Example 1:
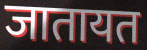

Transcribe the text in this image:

जातायत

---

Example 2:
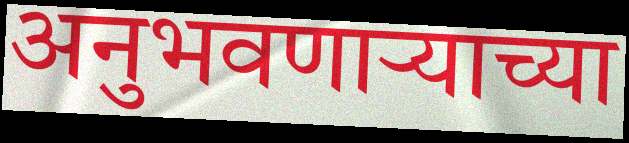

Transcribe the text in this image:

अनुभवणार्‍याच्या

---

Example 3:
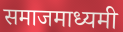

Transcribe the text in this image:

समाजमाध्यमी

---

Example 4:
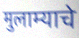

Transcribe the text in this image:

मुलाम्याचे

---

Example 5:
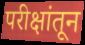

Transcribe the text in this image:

परीक्षांतून